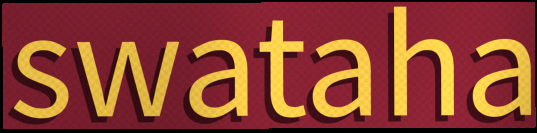
swataha